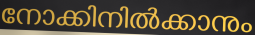
നോക്കിനിൽക്കാനും